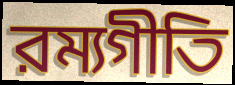
রম্যগীতি